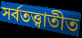
সর্বতত্ত্বাতীত